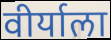
वीर्याला